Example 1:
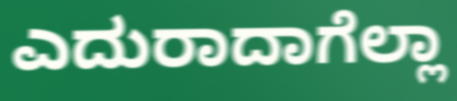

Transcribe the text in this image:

ಎದುರಾದಾಗೆಲ್ಲಾ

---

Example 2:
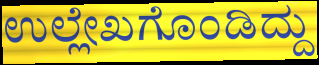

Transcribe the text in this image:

ಉಲ್ಲೇಖಗೊಂಡಿದ್ದು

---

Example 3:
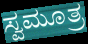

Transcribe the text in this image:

ಸ್ವಮೂತ್ರ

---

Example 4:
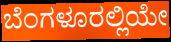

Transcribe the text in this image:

ಬೆಂಗಳೂರಲ್ಲಿಯೇ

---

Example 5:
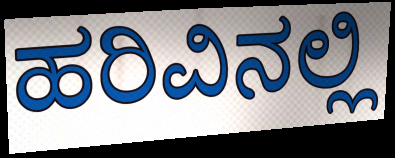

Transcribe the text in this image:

ಹರಿವಿನಲ್ಲಿ